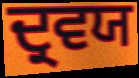
ਦ੍ਰਵਯ